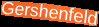
Gershenfeld